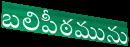
బలిపీఠమును